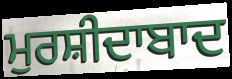
ਮੁਰਸ਼ੀਦਾਬਾਦ